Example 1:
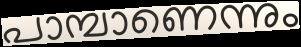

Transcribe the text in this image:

പാമ്പാണെന്നും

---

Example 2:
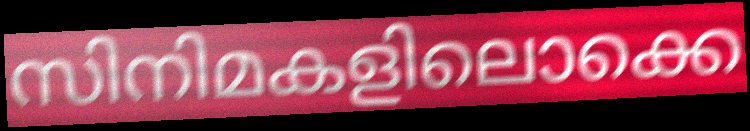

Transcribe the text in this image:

സിനിമകളിലൊക്കെ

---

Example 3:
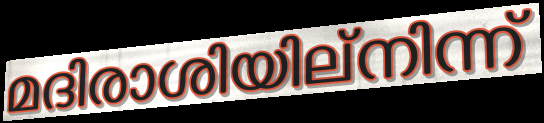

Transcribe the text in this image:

മദിരാശിയില്നിന്ന്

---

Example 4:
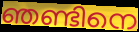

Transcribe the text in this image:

ഞണ്ടിനെ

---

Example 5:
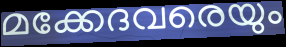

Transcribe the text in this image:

മക്കേദവരെയും